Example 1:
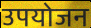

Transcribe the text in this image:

उपयोजन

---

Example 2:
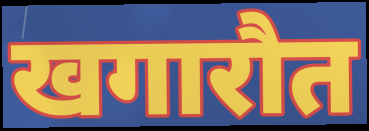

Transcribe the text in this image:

खगारौत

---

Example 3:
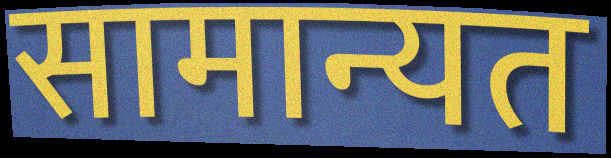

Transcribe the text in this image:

सामान्यत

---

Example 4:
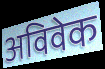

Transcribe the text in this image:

अविवेक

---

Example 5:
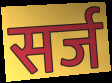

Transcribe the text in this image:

सर्ज